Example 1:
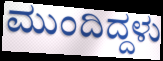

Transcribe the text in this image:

ಮುಂದಿದ್ದಳು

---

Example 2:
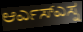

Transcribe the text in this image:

ಆರ್ಎಸ್ಎಸ್ನ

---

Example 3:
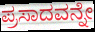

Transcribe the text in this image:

ಪ್ರಸಾದವನ್ನೇ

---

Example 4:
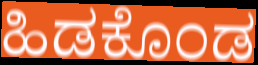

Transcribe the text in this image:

ಹಿಡಕೊಂಡ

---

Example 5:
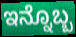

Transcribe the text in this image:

ಇನ್ನೊಬ್ಬ